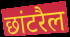
छांटरैल